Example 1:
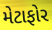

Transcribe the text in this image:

મેટાફોર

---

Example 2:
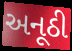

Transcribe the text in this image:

અનૂઠી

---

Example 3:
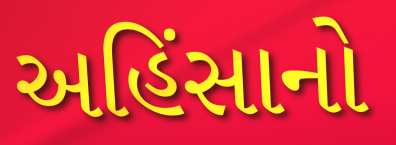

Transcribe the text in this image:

અહિંસાનો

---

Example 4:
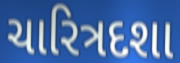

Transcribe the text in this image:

ચારિત્રદશા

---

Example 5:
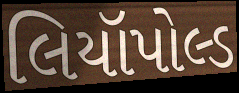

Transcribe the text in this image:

લિયૉપોલ્ડ